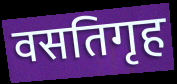
वसतिगृह